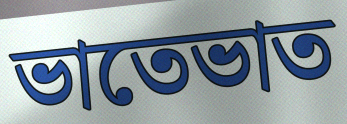
ভাতেভাত